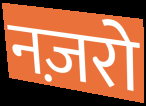
नज़रो